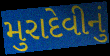
મુરાદેવીનું